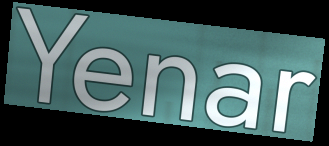
Yenar